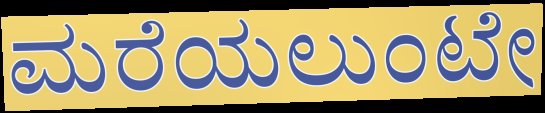
ಮರೆಯಲುಂಟೇ